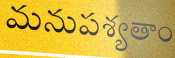
మనుపశ్యతాం